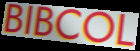
BIBCOL